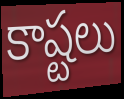
కాష్టలు